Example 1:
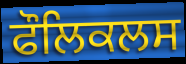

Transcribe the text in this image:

ਫੌਲਿਕਲਸ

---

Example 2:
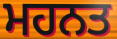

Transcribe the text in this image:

ਮਹਨਤ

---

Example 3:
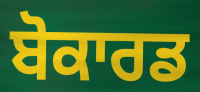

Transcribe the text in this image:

ਬੋਕਾਰਡ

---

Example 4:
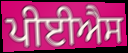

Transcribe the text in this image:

ਪੀਈਐਸ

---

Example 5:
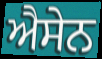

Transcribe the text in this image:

ਐਸੇਨ